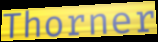
Thorner